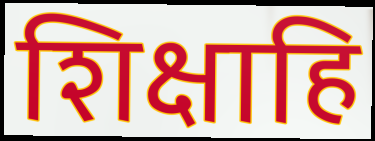
शिक्षाहि